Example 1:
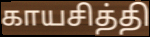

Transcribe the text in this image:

காயசித்தி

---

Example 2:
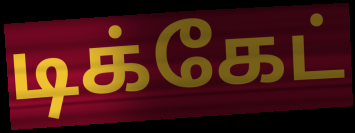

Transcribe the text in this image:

டிக்கேட்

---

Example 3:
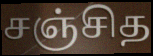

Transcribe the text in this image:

சஞ்சித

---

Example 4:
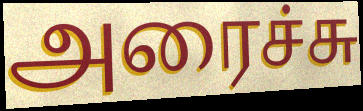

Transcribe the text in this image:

அரைச்சு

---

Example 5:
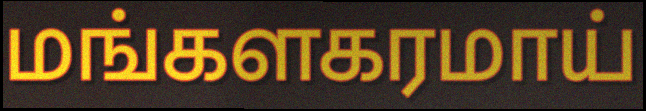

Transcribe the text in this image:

மங்களகரமாய்